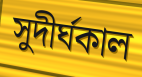
সুদীর্ঘকাল